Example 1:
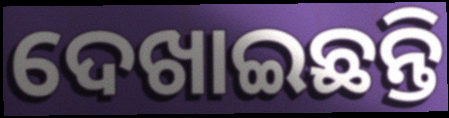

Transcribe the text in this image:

ଦେଖାଇଛନ୍ତି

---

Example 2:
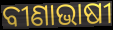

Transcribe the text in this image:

ବୀଣାଭାଷୀ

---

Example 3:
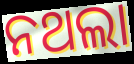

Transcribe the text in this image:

ନଥଲା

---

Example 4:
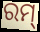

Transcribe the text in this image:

ରମ୍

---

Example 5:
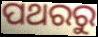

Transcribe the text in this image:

ପଥରରୁ